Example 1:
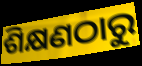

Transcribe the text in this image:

ଶିକ୍ଷଣଠାରୁ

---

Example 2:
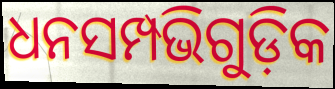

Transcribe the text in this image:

ଧନସମ୍ପଭିଗୁଡ଼ିକ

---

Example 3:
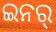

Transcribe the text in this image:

ଇନର୍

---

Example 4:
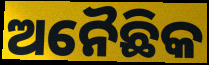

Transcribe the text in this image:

ଅନୈଛିକ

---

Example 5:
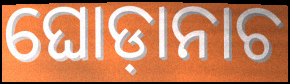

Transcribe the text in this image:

ଘୋଡ଼ାନାଚ